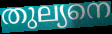
തുല്യനെ